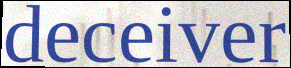
deceiver